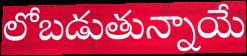
లోబడుతున్నాయే